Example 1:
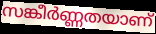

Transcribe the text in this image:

സങ്കീർണ്ണതയാണ്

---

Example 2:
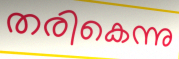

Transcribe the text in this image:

തരികെന്നു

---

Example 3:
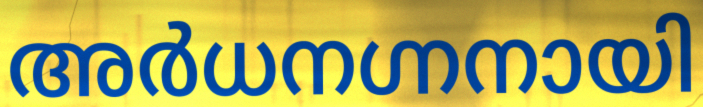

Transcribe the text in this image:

അർധനഗ്നനായി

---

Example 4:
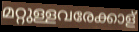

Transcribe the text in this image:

മറ്റുള്ളവരേക്കാള്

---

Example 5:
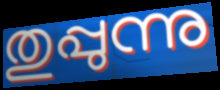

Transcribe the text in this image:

തുപ്പുന്നു